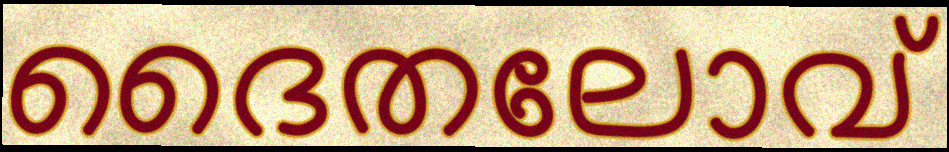
ദൈതലോവ്